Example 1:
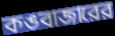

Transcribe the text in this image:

কঙবাজারের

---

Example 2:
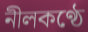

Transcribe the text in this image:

নীলকণ্ঠে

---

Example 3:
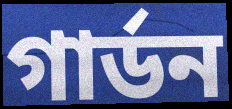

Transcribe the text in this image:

গার্ডন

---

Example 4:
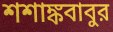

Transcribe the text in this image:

শশাঙ্কবাবুর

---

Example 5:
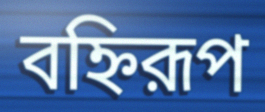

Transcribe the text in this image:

বহ্নিরূপ